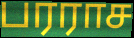
பரராச